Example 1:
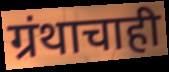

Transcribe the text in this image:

ग्रंथाचाही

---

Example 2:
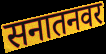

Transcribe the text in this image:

सनातनवर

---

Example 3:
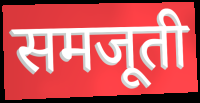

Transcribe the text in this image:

समजूती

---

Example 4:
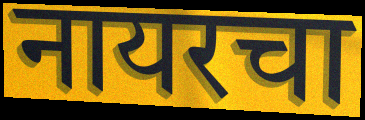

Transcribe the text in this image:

नायरचा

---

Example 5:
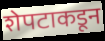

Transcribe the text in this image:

शेपटाकडून